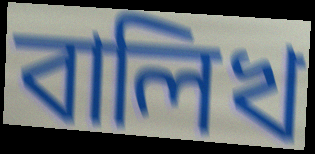
বালিখ